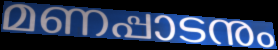
മണപ്പാടനും